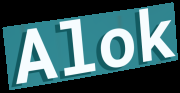
Alok